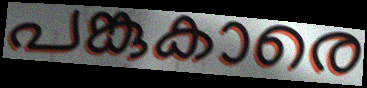
പങ്കുകാരെ